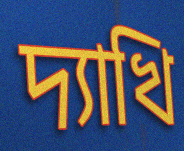
দ্যাখি